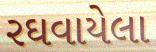
રઘવાયેલા